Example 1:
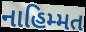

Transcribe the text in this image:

નાહિમ્મત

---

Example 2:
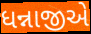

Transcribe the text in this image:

ધન્નાજીએ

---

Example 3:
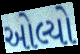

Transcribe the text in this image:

ઓલ્યો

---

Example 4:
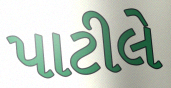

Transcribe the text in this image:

પાટીલે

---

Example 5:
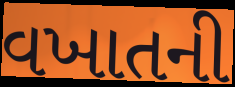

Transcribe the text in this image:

વખાતની